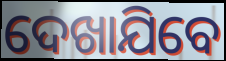
ଦେଖାଯିବେ